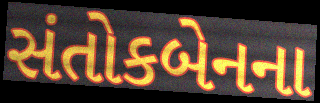
સંતોકબેનના